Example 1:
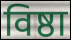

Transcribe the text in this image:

विष्ठा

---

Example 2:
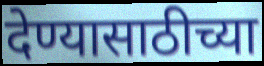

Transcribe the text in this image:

देण्यासाठीच्या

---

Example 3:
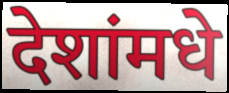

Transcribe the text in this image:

देशांमधे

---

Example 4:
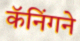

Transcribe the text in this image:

कॅनिंगने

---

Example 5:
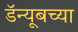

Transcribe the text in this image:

डॅन्यूबच्या